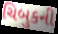
ચિબુકની